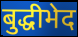
बुद्धीभेद